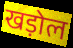
खड़ोल